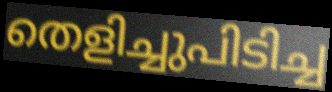
തെളിച്ചുപിടിച്ച